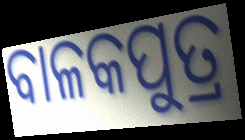
ବାଳକପୁତ୍ର